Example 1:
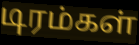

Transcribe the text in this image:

டிரம்கள்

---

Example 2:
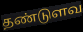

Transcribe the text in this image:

தண்டுளவ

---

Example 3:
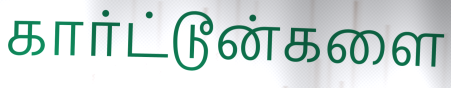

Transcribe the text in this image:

கார்ட்டூன்களை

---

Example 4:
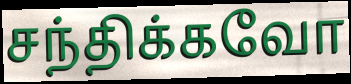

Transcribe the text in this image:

சந்திக்கவோ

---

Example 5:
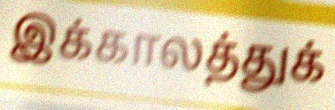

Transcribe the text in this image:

இக்காலத்துக்